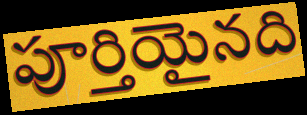
పూర్తియైనది